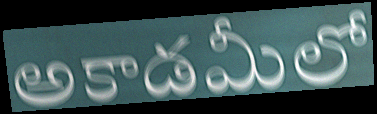
అకాడమీలో